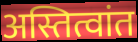
अस्तित्वांत